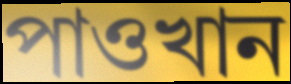
পাওখান